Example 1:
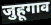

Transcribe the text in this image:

जुहूगाव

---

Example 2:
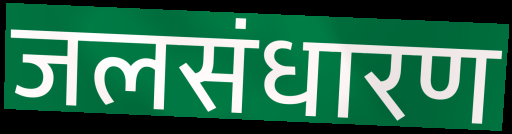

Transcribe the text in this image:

जलसंधारण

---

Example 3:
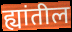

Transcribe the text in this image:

ह्यांतील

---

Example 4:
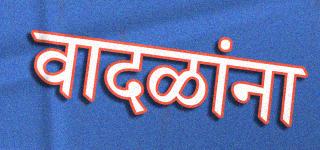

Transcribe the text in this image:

वादळांना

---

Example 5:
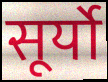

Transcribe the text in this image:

सूर्यो